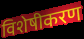
विशेषीकरण